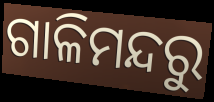
ଗାଳିମନ୍ଦରୁ